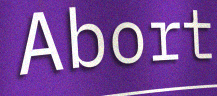
Abort